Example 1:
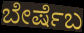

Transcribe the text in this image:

ಬೇರ್ಷೆಬ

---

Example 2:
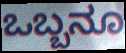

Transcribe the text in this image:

ಒಬ್ಬನೂ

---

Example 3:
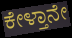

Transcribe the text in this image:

ಕೇಳ್ತಾನೇ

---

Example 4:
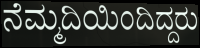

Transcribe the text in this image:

ನೆಮ್ಮದಿಯಿಂದಿದ್ದರು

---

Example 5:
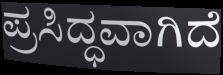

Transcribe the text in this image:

ಪ್ರಸಿದ್ಧವಾಗಿದೆ